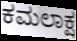
ಕಮಲಾಕ್ಷ